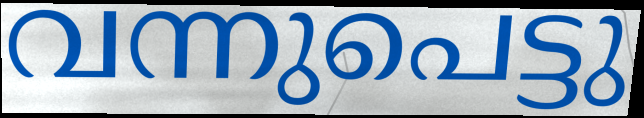
വന്നുപെട്ടു